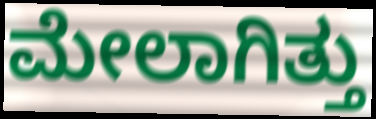
ಮೇಲಾಗಿತ್ತು